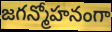
జగన్మోహనంగా